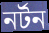
নৰ্টন